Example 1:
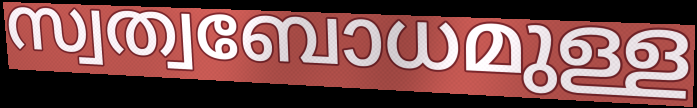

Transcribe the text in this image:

സ്വത്വബോധമുള്ള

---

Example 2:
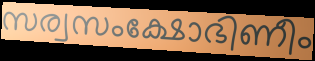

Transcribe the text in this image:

സര്വസംക്ഷോഭിണീം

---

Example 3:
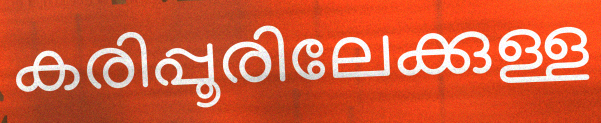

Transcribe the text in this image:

കരിപ്പൂരിലേക്കുള്ള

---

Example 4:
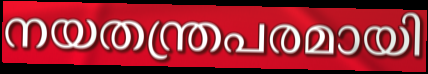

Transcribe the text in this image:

നയതന്ത്രപരമായി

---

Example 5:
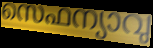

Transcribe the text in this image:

സെഫന്യാവു